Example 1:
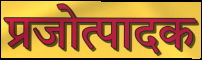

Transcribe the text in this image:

प्रजोत्पादक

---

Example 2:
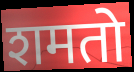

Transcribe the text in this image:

शमतो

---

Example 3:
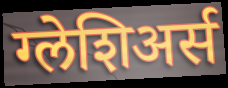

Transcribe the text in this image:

ग्लेशिअर्स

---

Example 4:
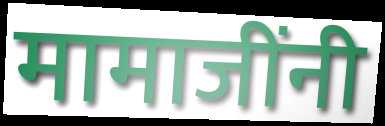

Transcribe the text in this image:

मामाजींनी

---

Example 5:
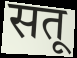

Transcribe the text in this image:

सतू